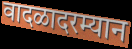
वादळादरम्यान